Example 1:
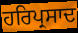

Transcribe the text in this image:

ਹਰਿਪ੍ਰਸਾਦ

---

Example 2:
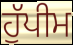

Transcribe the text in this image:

ਹੁੱਪੀਮ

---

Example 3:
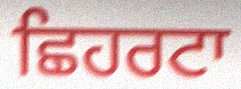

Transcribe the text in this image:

ਛਿਹਰਟਾ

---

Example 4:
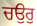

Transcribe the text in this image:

ਚਉਰੁ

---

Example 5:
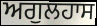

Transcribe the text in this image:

ਅਗੁਲਹਾਸ